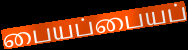
பையப்பையப்